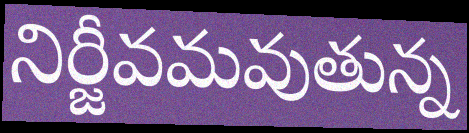
నిర్జీవమవుతున్న